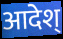
आदेश्